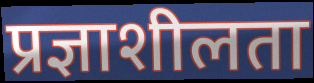
प्रज्ञाशीलता